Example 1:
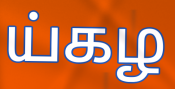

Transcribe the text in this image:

ய்கழ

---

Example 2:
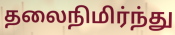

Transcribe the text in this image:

தலைநிமிர்ந்து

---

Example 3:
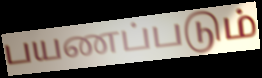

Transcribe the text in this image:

பயணப்படும்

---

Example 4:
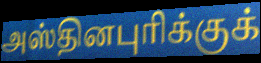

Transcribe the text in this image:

அஸ்தினபுரிக்குக்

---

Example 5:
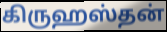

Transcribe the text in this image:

கிருஹஸ்தன்